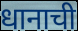
धानाची